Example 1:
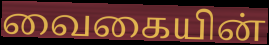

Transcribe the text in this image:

வைகையின்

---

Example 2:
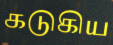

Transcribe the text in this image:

கடுகிய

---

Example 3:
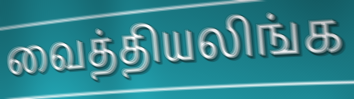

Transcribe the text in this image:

வைத்தியலிங்க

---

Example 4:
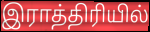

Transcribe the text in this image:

இராத்திரியில்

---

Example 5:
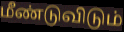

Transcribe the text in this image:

மீண்டுவிடும்